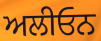
ਅਲੀਓਨ